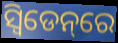
ସ୍ୱିଡେନ୍‌ରେ